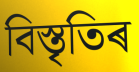
বিস্তৃতিৰ